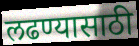
लढण्यासाठी